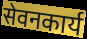
सेवनकार्य